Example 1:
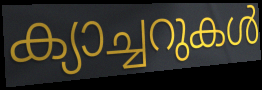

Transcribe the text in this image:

ക്യാച്ചറുകൾ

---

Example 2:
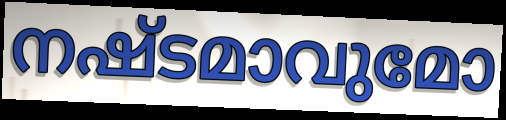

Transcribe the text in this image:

നഷ്ടമാവുമോ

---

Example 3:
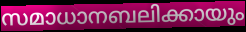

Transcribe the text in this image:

സമാധാനബലിക്കായും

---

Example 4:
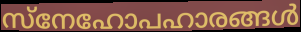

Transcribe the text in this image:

സ്നേഹോപഹാരങ്ങൾ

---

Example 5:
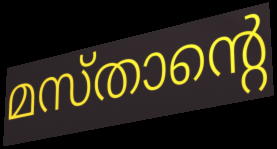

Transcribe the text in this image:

മസ്താന്റെ